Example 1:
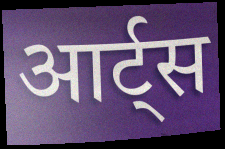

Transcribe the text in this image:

आर्ट्स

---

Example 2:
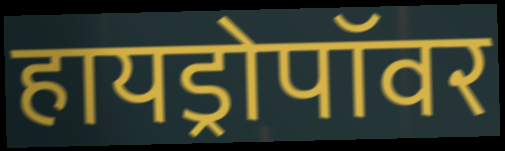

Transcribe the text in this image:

हायड्रोपॉवर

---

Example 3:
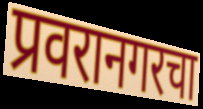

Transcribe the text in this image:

प्रवरानगरचा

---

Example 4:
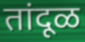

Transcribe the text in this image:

तांदूळ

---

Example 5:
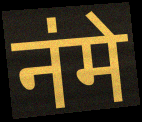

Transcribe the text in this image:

न॑मे